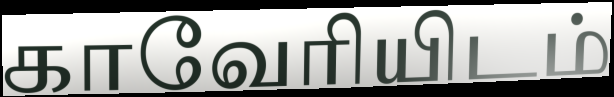
காவேரியிடம்